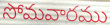
సోమవారము